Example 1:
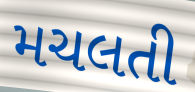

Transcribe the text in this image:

મચલતી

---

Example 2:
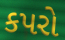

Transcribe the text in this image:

કપરો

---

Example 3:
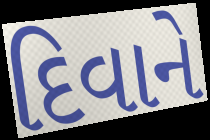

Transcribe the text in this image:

દિવાને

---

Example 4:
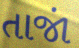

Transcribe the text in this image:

તાજાં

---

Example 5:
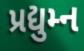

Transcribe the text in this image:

પ્રદ્યુમ્ન